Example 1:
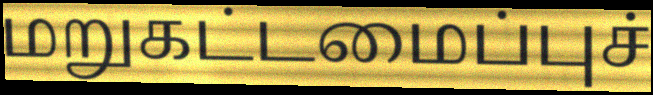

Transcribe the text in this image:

மறுகட்டமைப்புச்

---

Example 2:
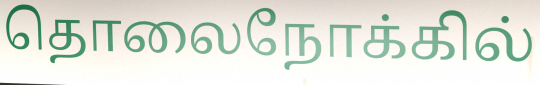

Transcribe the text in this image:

தொலைநோக்கில்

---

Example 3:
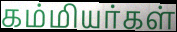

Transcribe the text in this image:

கம்மியர்கள்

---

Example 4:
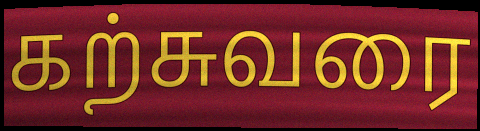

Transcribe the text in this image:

கற்சுவரை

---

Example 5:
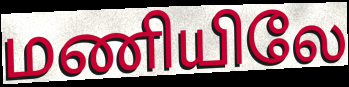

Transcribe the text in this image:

மணியிலே